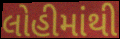
લોહીમાંથી